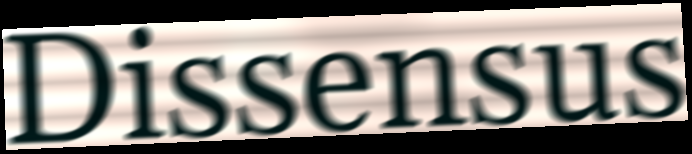
Dissensus